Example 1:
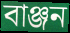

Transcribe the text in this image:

বাঞ্জন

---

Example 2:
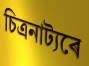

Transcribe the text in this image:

চিত্ৰনাট্যৰে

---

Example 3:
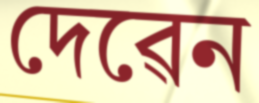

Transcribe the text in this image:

দেৱেন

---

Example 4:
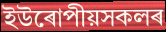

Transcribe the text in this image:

ইউৰোপীয়সকলৰ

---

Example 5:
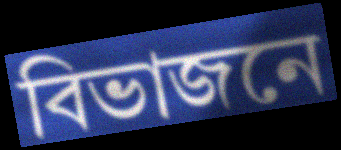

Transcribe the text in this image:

বিভাজনে